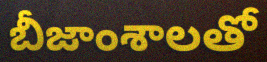
బీజాంశాలతో